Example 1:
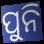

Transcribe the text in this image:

ପୁନି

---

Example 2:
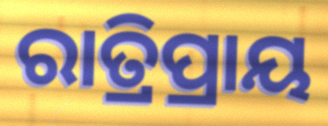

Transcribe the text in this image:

ରାତ୍ରିପ୍ରାୟ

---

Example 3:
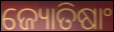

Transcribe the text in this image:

ଜ୍ୟୋତିଷାଂ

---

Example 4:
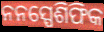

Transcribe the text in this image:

ନନସ୍ପେଶିଫିକ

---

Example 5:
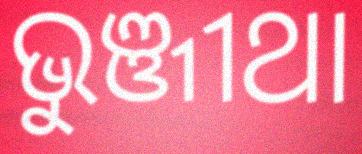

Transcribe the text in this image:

ଭୁଞ୍ଜୀଥା